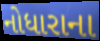
નોધારાના